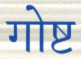
गोष्ट